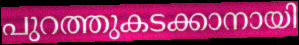
പുറത്തുകടക്കാനായി